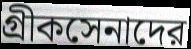
গ্রীকসেনাদের